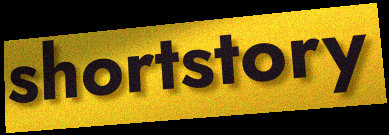
shortstory